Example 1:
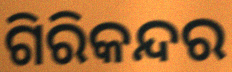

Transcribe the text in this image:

ଗିରିକନ୍ଦର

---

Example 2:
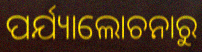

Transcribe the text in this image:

ପର୍ଯ୍ୟାଲୋଚନାରୁ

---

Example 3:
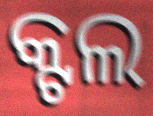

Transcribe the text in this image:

କ୍ଟଲ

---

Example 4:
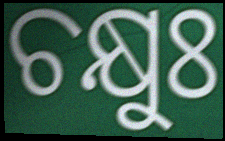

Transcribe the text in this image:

ଚକ୍ଷୁଃ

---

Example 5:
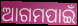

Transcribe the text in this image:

ଆଗମପାଇଁ